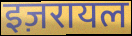
इज़रायल